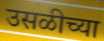
उसळीच्या